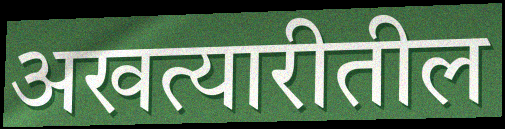
अखत्यारीतील